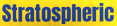
Stratospheric